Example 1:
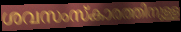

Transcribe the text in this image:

ശവസംസ്കാരത്തിനുള്ള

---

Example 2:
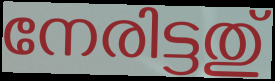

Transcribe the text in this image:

നേരിട്ടതു്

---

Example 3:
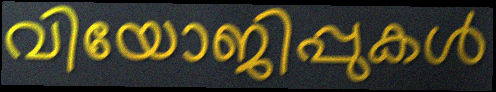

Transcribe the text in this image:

വിയോജിപ്പുകൾ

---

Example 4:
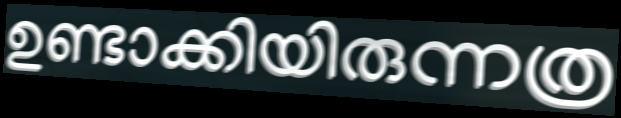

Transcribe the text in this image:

ഉണ്ടാക്കിയിരുന്നത്ര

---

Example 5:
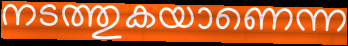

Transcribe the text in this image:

നടത്തുകയാണെന്ന